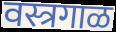
वस्त्रगाळ